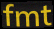
fmt